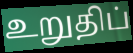
உறுதிப்